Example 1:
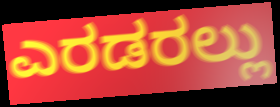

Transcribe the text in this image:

ಎರಡರಲ್ಲು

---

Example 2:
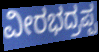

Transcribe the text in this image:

ವೀರಭದ್ರಪ್ಪ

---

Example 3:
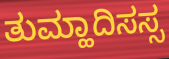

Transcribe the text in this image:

ತುಮ್ಹಾದಿಸಸ್ಸ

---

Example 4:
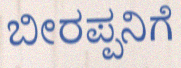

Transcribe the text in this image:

ಬೀರಪ್ಪನಿಗೆ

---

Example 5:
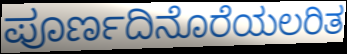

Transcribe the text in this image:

ಪೂರ್ಣದಿನೊರೆಯಲರಿತ